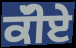
ਕੱੀਏ